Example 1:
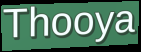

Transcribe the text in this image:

Thooya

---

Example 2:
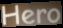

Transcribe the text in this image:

Hero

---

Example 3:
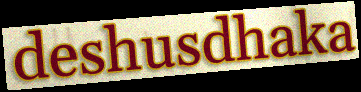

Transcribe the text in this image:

deshusdhaka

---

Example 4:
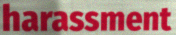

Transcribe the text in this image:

harassment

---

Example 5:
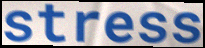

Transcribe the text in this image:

stress